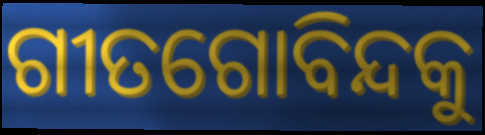
ଗୀତଗୋବିନ୍ଦକୁ